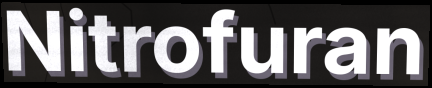
Nitrofuran